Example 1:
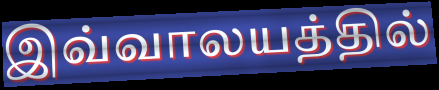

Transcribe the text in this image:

இவ்வாலயத்தில்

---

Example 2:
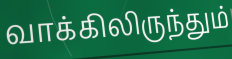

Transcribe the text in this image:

வாக்கிலிருந்தும்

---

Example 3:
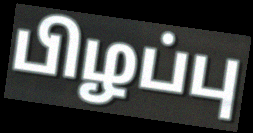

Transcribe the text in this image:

பிழப்பு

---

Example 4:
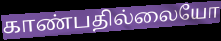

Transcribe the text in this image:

காண்பதில்லையோ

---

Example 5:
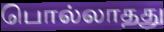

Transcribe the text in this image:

பொல்லாதது